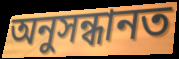
অনুসন্ধানত